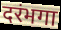
दरंभगा